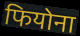
फियोना